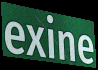
exine